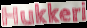
Hukkeri